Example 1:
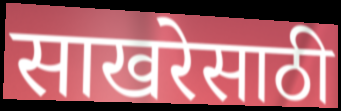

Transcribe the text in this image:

साखरेसाठी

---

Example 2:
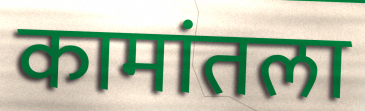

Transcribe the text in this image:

कामांतला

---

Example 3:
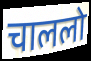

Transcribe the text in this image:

चाललो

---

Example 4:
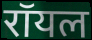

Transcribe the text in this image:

रॉयल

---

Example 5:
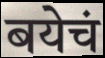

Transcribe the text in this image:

बयेचं